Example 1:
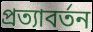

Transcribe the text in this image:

প্ৰত্যাবৰ্তন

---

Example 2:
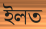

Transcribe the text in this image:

ইলত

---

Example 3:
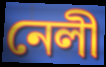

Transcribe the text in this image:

নেলী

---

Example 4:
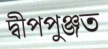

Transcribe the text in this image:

দ্বীপপুঞ্জত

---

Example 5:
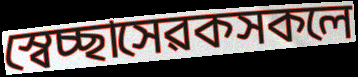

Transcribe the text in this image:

স্বেচ্ছাসেৱকসকলে